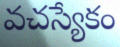
వచస్యేకం